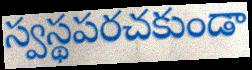
స్వస్థపరచకుండా